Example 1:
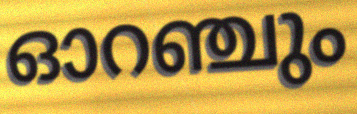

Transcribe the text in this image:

ഓറഞ്ചും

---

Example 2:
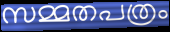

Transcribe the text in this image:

സമ്മതപത്രം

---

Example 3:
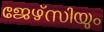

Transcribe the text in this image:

ജേഴ്സിയും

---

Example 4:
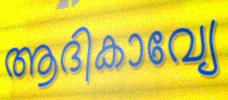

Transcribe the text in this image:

ആദികാവ്യേ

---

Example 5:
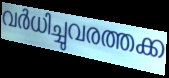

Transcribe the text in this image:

വർധിച്ചുവരത്തക്ക